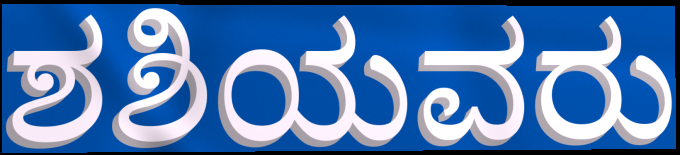
ಶಶಿಯವರು